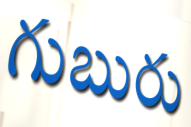
గుబురు